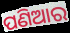
ପଣିଆର